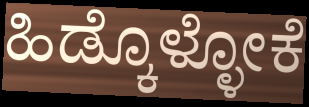
ಹಿಡ್ಕೊಳ್ಳೋಕೆ